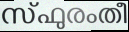
സ്ഫുരംതീ